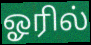
ஓரில்